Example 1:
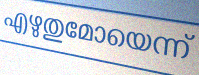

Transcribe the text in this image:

എഴുതുമോയെന്ന്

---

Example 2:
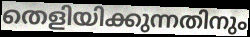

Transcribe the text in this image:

തെളിയിക്കുന്നതിനും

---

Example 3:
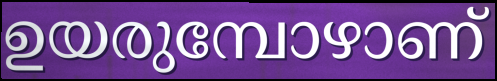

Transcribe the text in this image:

ഉയരുമ്പോഴാണ്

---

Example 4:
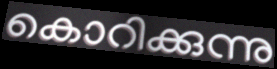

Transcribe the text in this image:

കൊറിക്കുന്നു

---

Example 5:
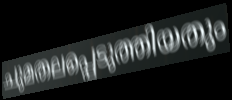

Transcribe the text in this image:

ചുമതലപ്പെടുത്തിയതും